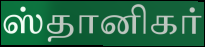
ஸ்தானிகர்